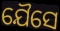
ଯୈସେ